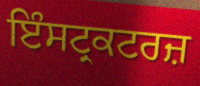
ਇੰਸਟ੍ਰਕਟਰਜ਼